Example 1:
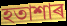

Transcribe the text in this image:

হতাশাৰ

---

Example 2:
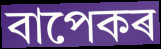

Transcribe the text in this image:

বাপেকৰ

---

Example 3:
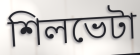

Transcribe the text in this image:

শিলভেটা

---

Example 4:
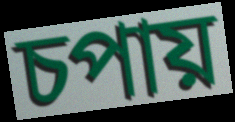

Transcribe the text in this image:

চপায়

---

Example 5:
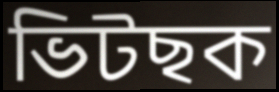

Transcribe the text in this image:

ভিটছক